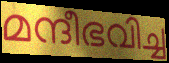
മന്ദീഭവിച്ച